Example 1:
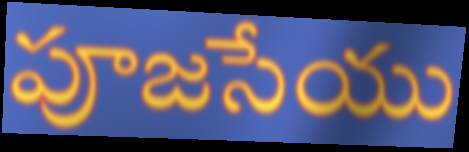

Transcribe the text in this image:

పూజసేయు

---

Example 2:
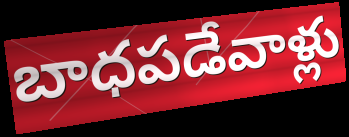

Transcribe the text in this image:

బాధపడేవాళ్లు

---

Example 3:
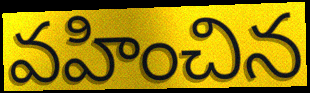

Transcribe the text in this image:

వహించిన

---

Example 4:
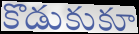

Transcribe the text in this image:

కొడుకుకూ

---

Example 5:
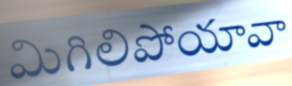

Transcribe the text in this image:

మిగిలిపోయావా